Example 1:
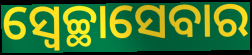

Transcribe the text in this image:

ସ୍ୱେଚ୍ଛାସେବାର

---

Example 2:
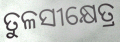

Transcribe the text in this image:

ତୁଳସୀକ୍ଷେତ୍ର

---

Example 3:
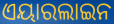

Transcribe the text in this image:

ଏୟାରଲାଇନ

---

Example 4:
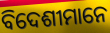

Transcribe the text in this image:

ବିଦେଶୀମାନେ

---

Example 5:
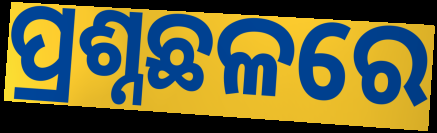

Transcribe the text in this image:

ପ୍ରଶ୍ନଛଳରେ